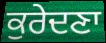
ਕੁਰੇਦਣਾ